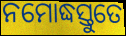
ନମୋଦ୍ଧସ୍ତୁତେ